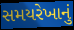
સમયરેખાનું